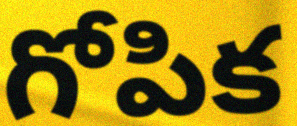
గోపిక